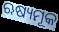
ଋଷ୍ୟମୂକ